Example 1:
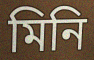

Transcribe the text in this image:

মিনি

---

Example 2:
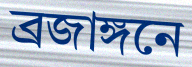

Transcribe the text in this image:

ব্রজাঙ্গনে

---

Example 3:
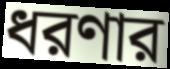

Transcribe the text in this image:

ধরণার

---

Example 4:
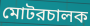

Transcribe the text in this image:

মোটরচালক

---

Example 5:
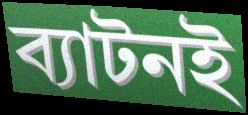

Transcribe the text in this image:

ব্যাটনই